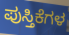
ಪುಸ್ತಿಕೆಗಳ